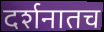
दर्शनातच